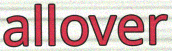
allover